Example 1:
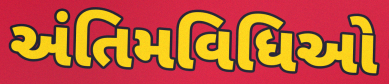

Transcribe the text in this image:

અંતિમવિધિઓ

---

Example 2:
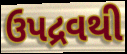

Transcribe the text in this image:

ઉપદ્રવથી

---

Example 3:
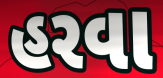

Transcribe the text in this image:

હરવા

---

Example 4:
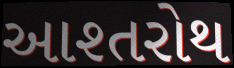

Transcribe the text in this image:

આશ્તરોથ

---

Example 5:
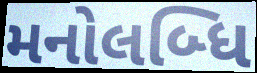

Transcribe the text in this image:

મનોલબ્ધિ